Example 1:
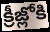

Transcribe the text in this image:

క్రీజ్లోకి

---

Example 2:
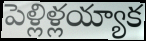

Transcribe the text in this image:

పెళ్లిళ్లయ్యాక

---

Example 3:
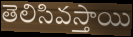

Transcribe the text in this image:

తెలిసివస్తాయి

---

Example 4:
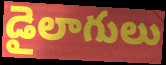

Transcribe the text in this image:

డైలాగులు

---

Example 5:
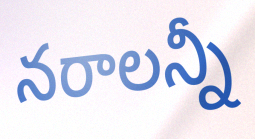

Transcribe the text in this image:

నరాలన్నీ